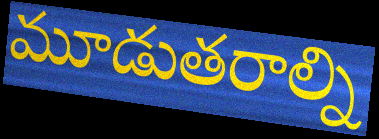
మూడుతరాల్ని